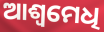
ଆଶ୍ୱମେଧି